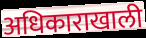
अधिकाराखाली